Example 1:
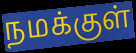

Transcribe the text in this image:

நமக்குள்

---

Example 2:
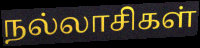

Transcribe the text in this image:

நல்லாசிகள்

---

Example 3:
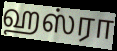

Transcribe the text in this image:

ஹஸ்ரா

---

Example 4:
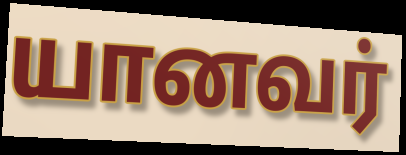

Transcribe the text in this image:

யானவர்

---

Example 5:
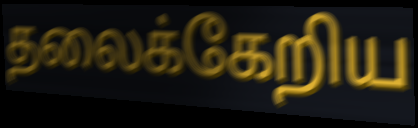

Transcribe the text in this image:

தலைக்கேறிய